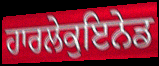
ਹਾਰਲੇਕੁਇਨੇਡ